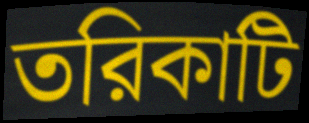
তরিকাটি